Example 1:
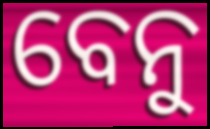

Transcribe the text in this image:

ବେନୁ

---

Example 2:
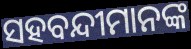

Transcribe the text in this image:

ସହବନ୍ଦୀମାନଙ୍କ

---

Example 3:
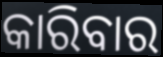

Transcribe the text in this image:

କାରିବାର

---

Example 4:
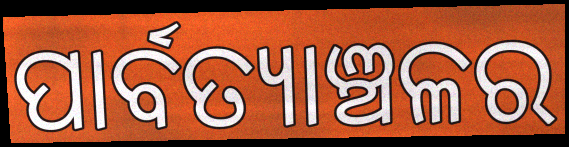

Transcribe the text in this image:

ପାର୍ବତ୍ୟାଞ୍ଚଳର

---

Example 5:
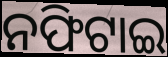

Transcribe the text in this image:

ନଫିଟାଇ